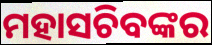
ମହାସଚିବଙ୍କର